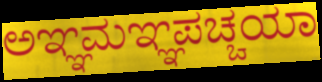
ಅಞ್ಞಮಞ್ಞಪಚ್ಚಯಾ